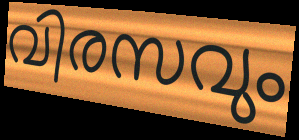
വിരസവും